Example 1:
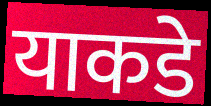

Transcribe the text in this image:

याकडे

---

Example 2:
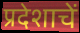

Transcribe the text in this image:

प्रदेशाचें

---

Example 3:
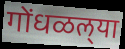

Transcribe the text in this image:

गोंधळल्या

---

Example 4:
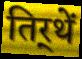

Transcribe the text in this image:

तिर्थें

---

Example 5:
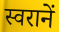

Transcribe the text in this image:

स्वरानें